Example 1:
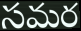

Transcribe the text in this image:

సమర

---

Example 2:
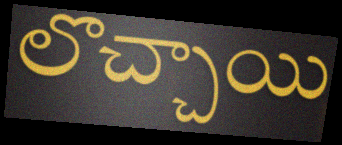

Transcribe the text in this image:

లొచ్చాయి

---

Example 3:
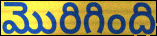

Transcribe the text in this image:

మొరిగింది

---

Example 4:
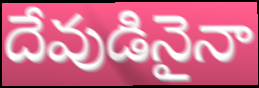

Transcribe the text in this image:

దేవుడినైనా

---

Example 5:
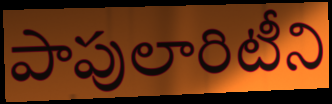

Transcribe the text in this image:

పాపులారిటీని